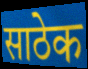
साठेक